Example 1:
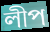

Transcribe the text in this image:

লীপ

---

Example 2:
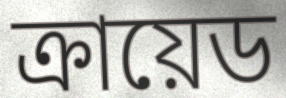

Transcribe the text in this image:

ক্রায়েড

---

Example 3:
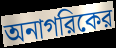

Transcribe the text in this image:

অনাগরিকের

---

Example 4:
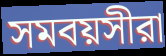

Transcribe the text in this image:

সমবয়সীরা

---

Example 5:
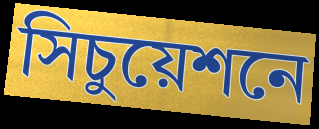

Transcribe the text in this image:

সিচুয়েশনে